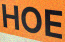
HOE